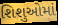
શિશુઓમાં